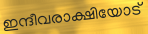
ഇന്ദീവരാക്ഷിയോട്